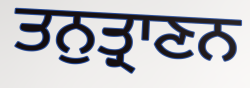
ਤਨੁਤ੍ਰਾਣਨ